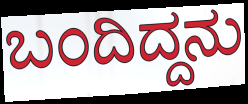
ಬಂದಿದ್ದನು